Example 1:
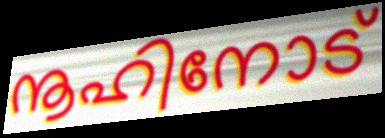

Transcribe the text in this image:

നൂഹിനോട്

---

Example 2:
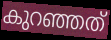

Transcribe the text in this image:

കുറഞ്ഞത്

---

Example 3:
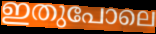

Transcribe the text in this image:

ഇതുപോലെ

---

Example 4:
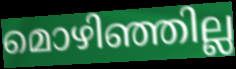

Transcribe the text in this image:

മൊഴിഞ്ഞില്ല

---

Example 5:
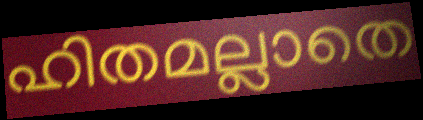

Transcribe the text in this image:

ഹിതമല്ലാതെ